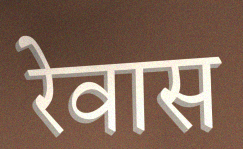
रेवास